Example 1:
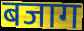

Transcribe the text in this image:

बजाग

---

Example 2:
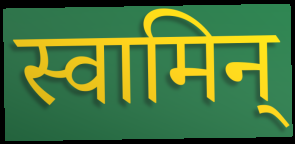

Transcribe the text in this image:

स्वामिन्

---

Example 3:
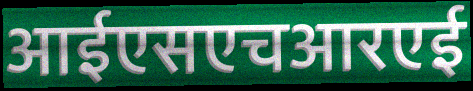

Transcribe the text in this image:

आईएसएचआरएई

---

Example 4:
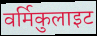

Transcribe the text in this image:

वर्मिकुलाइट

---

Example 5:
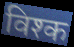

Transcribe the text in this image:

विश्क